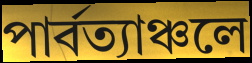
পার্বত্যাঞ্চলে